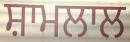
ਸ਼ਾਮਲਾਲ